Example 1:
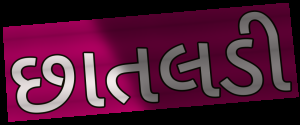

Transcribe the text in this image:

છાતલડી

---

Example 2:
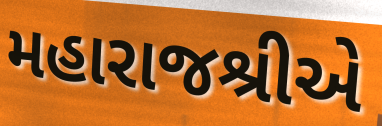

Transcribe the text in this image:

મહારાજશ્રીએ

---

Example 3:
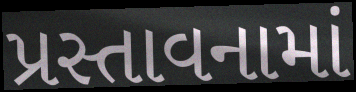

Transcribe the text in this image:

પ્રસ્તાવનામાં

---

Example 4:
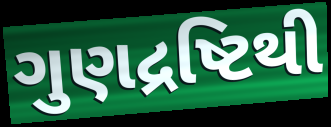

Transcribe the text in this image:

ગુણદ્રષ્ટિથી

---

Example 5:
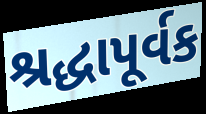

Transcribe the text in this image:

શ્રદ્ધાપૂર્વક